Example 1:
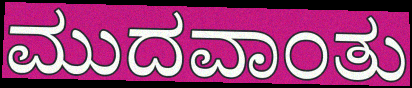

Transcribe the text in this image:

ಮುದವಾಂತು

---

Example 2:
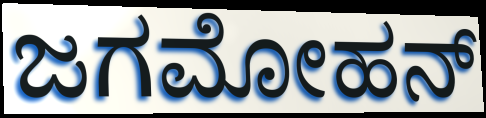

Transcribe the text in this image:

ಜಗಮೋಹನ್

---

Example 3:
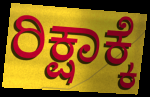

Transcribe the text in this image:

ರಿಕ್ಷಾಕ್ಕೆ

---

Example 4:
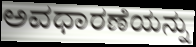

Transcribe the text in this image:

ಅವಧಾರಣೆಯನ್ನು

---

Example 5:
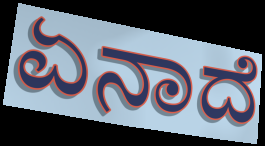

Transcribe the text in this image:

ಏನಾದೆ